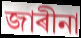
জাৰীনা